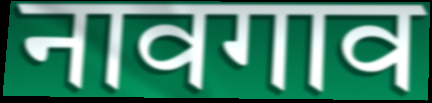
नावगाव